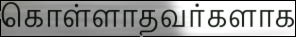
கொள்ளாதவர்களாக